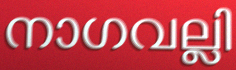
നാഗവല്ലി